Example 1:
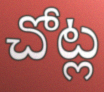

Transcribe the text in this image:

చోట్ల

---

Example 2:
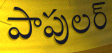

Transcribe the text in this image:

పాపులర్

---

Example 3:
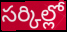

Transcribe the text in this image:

సర్కిల్లో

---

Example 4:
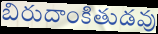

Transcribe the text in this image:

బిరుదాంకితుడవు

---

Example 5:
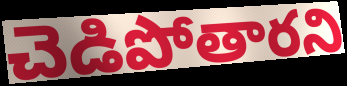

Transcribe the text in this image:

చెడిపోతారని